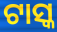
ଟାସ୍କ